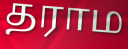
தராம